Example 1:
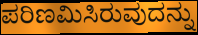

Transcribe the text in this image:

ಪರಿಣಮಿಸಿರುವುದನ್ನು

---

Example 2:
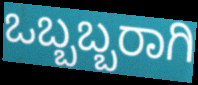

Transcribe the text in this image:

ಒಬ್ಬಬ್ಬರಾಗಿ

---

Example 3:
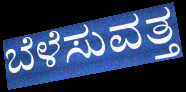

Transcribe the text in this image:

ಬೆಳೆಸುವತ್ತ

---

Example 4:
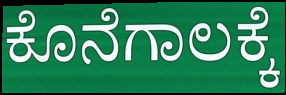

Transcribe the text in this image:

ಕೊನೆಗಾಲಕ್ಕೆ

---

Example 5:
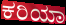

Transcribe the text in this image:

ಕರಿಯಾ